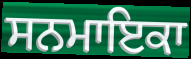
ਸਨਮਾਇਕਾ